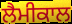
ਲੈਮੀਕਾਲ